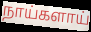
நாய்களாய்